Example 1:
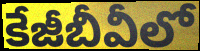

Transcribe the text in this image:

కేజీబీవీలో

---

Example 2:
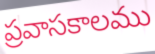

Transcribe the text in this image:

ప్రవాసకాలము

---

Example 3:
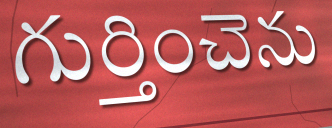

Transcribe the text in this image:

గుర్తించెను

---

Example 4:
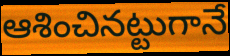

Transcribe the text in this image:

ఆశించినట్టుగానే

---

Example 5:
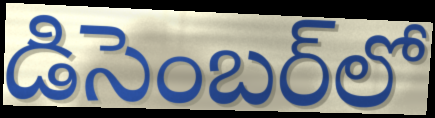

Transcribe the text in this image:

డిసెంబర్‌లో